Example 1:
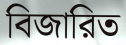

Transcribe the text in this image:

বিজারিত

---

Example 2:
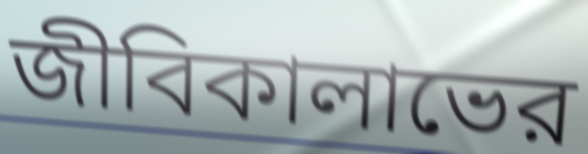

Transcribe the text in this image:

জীবিকালাভের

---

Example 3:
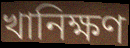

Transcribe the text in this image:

খানিক্ষণ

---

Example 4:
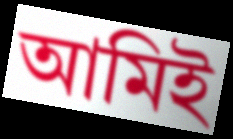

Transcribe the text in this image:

আমিই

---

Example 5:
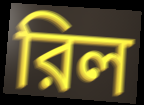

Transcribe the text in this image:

রিল